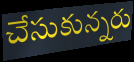
చేసుకున్నరు